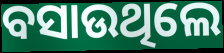
ବସାଉଥିଲେ